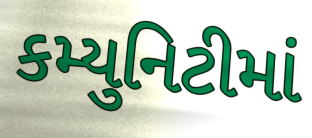
કમ્યુનિટીમાં